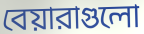
বেয়ারাগুলো